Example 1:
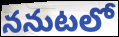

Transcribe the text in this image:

ననుటలో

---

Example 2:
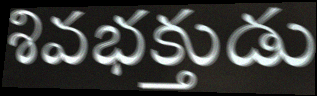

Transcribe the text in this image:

శివభక్తుడు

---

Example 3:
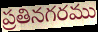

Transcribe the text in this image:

ప్రతినగరము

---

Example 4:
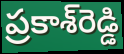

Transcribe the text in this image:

ప్రకాశ్‌రెడ్డి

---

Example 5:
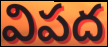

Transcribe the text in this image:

విపద